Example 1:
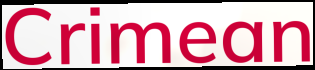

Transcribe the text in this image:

Crimean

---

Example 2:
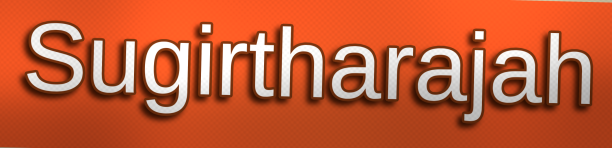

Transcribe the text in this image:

Sugirtharajah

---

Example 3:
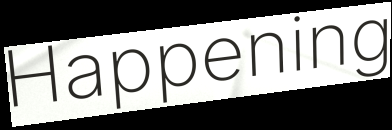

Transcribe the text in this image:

Happening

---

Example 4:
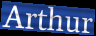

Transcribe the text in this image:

Arthur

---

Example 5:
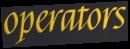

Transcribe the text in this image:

operators